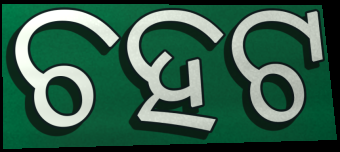
ଚହଟ